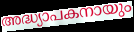
അദ്ധ്യാപകനായും